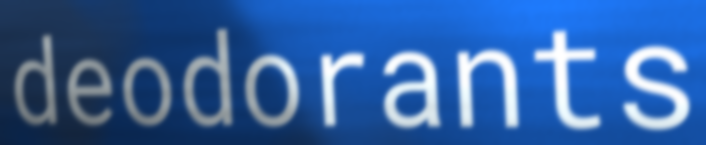
deodorants